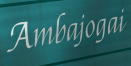
Ambajogai